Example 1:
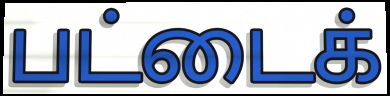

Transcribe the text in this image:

பட்டைக்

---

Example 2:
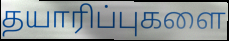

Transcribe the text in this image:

தயாரிப்புகளை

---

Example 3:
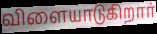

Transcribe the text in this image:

விளையாடுகிறார்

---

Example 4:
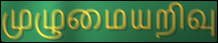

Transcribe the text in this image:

முழுமையறிவு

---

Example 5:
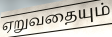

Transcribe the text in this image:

ஏறுவதையும்